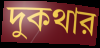
দুকথার